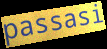
passasi